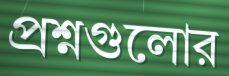
প্রশ্নগুলোর